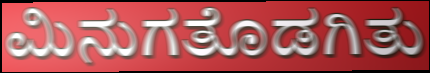
ಮಿನುಗತೊಡಗಿತು